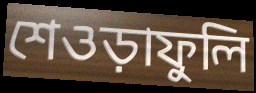
শেওড়াফুলি